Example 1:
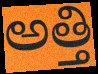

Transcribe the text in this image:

అత్తి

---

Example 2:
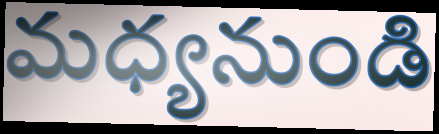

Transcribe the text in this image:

మధ్యనుండి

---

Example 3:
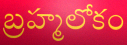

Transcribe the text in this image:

బ్రహ్మలోకం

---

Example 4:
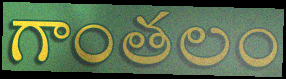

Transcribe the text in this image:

గాంతలం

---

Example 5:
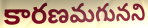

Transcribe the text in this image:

కారణమగునని